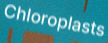
Chloroplasts